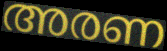
അരണ